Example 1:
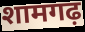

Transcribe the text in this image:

शामगढ़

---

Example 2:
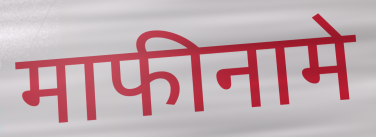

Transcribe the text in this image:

माफीनामे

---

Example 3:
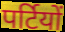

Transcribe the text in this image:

पर्टियों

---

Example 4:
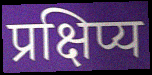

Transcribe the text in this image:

प्रक्षिप्य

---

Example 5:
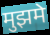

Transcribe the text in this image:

मुझमे